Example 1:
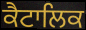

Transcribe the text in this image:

ਕੈਟਾਲਿਕ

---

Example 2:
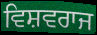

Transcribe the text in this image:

ਵਿਸ਼ਵਰਾਜ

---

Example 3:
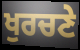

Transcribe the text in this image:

ਖੁਰਚਣੇ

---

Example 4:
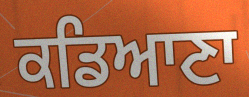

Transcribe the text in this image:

ਕਡਿਆਣਾ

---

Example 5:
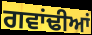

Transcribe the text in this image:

ਗਵਾਂਢੀਆਂ